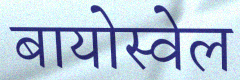
बायोस्वेल